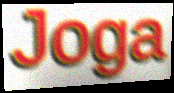
Joga